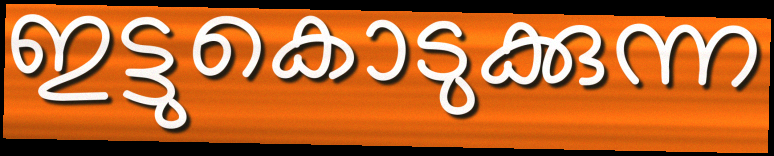
ഇട്ടുകൊടുക്കുന്ന